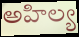
అహిల్య